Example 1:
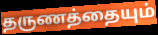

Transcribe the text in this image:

தருணத்தையும்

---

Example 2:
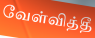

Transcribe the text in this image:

வேள்வித்தீ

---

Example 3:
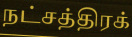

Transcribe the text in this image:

நட்சத்திரக்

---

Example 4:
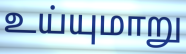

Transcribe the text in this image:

உய்யுமாறு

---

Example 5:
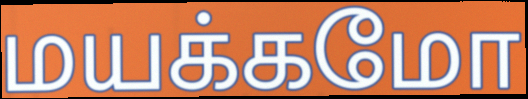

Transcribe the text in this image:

மயக்கமோ